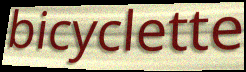
bicyclette